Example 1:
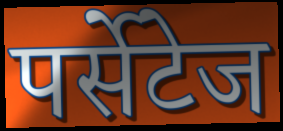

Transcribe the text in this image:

पर्सेटेज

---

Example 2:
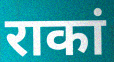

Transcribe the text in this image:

राकां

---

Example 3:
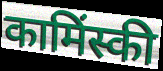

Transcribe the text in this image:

कामिंस्की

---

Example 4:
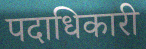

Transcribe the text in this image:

पदाधिकारी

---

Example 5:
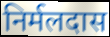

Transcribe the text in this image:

निर्मलदास